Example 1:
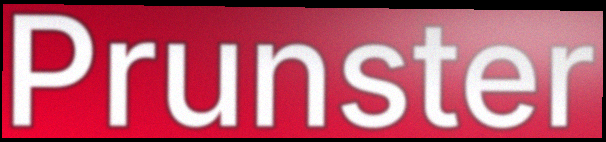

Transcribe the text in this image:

Prunster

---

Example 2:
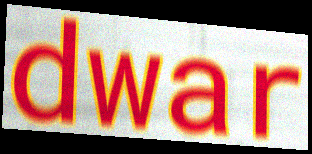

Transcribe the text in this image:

dwar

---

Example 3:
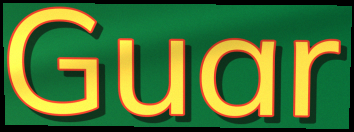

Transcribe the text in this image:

Guar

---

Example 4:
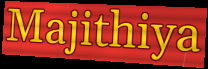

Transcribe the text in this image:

Majithiya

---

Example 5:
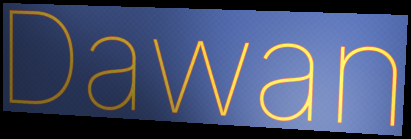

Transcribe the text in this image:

Dawan